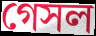
গেসল